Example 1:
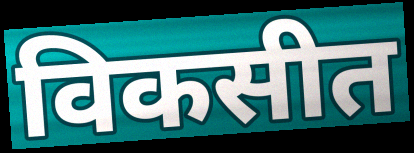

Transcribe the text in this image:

विकसीत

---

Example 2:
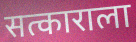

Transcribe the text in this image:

सत्काराला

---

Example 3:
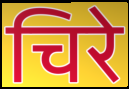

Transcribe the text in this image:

चिरे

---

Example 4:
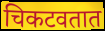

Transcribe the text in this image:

चिकटवतात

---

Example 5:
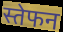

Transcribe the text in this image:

स्तेफन